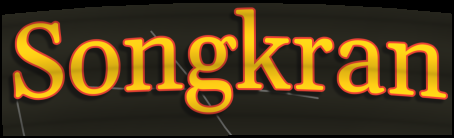
Songkran